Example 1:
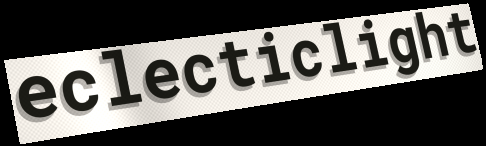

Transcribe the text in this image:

eclecticlight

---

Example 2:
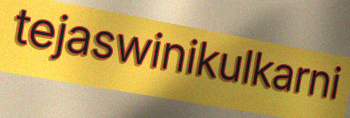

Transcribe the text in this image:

tejaswinikulkarni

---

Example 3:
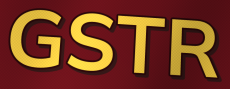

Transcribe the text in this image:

GSTR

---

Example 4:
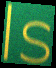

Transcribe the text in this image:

Is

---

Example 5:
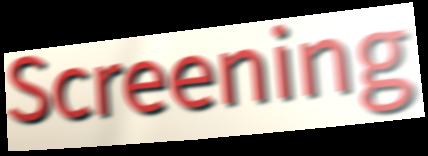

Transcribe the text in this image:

Screening